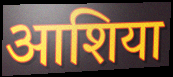
आशिया